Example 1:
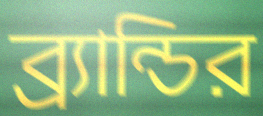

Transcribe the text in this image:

ব্র্যান্ডির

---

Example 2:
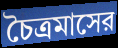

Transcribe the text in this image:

চৈত্রমাসের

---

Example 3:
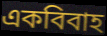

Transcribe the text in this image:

একবিবাহ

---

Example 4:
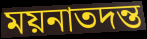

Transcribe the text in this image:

ময়নাতদন্ত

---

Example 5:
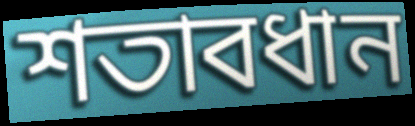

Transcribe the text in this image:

শতাবধান